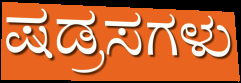
ಷಡ್ರಸಗಳು